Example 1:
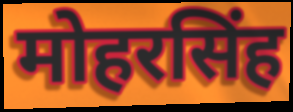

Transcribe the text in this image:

मोहरसिंह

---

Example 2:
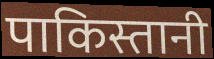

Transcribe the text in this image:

पाकिस्तानी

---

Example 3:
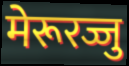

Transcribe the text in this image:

मेरूरज्जु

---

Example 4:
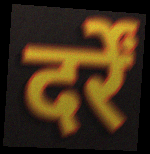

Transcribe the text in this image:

दर्रें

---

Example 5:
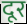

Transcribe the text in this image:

दूर